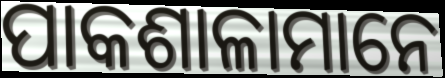
ପାକଶାଳାମାନେ